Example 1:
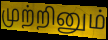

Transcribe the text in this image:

முற்றினும்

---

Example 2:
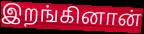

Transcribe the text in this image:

இறங்கினான்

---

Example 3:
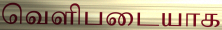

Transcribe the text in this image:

வெளிபடையாக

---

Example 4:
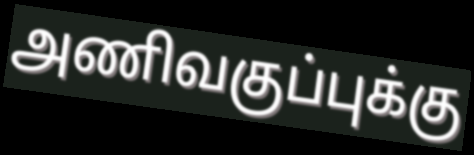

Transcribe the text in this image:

அணிவகுப்புக்கு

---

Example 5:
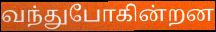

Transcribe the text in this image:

வந்துபோகின்றன